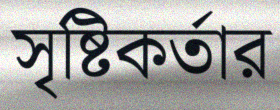
সৃষ্টিকর্তার